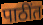
पाठींत